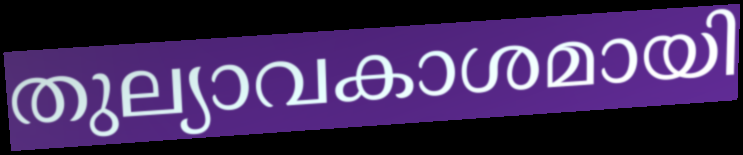
തുല്യാവകാശമായി